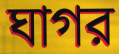
ঘাগর